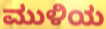
ಮುಳಿಯ